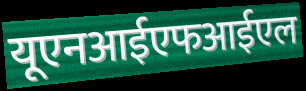
यूएनआईएफआईएल